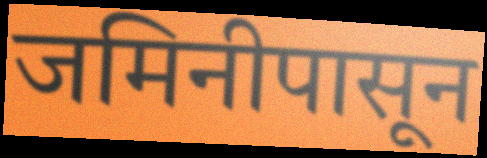
जमिनीपासून